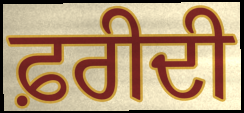
ਫ਼ਰੀਦੀ